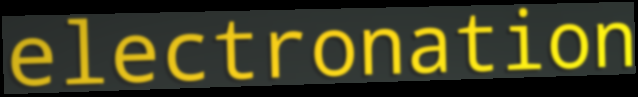
electronation